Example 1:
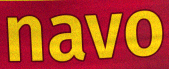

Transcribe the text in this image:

navo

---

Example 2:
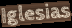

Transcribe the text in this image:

Iglesias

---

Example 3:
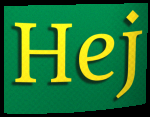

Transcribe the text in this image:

Hej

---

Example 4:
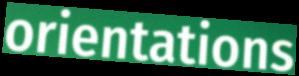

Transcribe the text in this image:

orientations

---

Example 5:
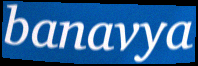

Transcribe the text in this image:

banavya